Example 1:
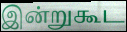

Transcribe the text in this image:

இன்றுகூட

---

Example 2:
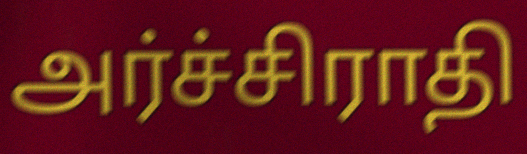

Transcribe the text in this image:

அர்ச்சிராதி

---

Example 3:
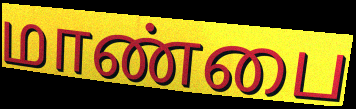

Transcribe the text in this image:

மாண்பை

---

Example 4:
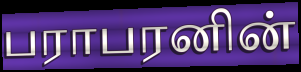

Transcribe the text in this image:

பராபரனின்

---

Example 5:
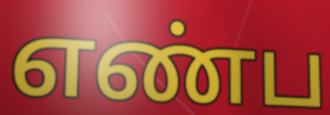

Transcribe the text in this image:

எண்ப